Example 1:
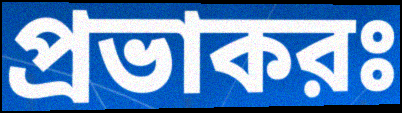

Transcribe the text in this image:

প্রভাকরঃ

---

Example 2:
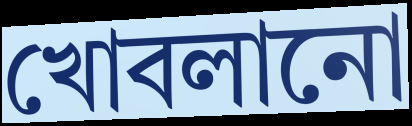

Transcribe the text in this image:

খোবলানো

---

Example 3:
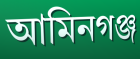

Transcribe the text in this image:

আমিনগঞ্জ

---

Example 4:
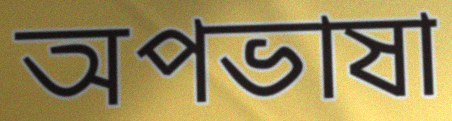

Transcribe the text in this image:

অপভাষা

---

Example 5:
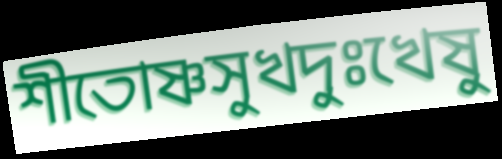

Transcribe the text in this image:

শীতোষ্ণসুখদুঃখেষু